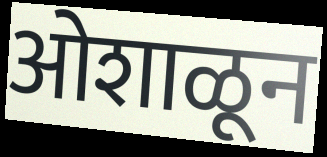
ओशाळून